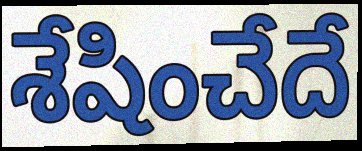
శేషించేదే